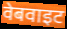
वेबवाइट